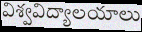
విశ్వవిద్యాలయాలు